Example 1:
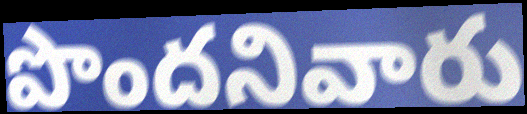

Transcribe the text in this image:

పొందనివారు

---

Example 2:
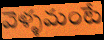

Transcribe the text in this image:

వెళ్ళమంటే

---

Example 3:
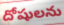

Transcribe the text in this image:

దోషులను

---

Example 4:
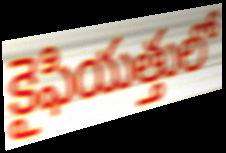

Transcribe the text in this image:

కైఫియత్తులో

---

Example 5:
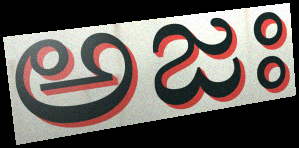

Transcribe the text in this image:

అజః